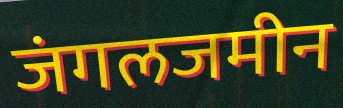
जंगलजमीन